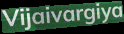
Vijaivargiya